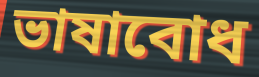
ভাষাবোধ